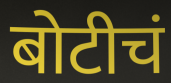
बोटीचं